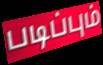
படிப்பும்